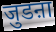
जुडऩा